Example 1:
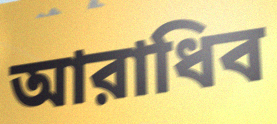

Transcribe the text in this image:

আরাধিব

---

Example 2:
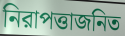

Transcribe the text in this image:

নিরাপত্তাজনিত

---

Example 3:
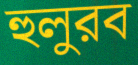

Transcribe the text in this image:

হুলুরব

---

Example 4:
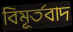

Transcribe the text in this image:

বিমূর্তবাদ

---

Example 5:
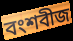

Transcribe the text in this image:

বংশবীজ